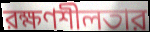
রক্ষণশীলতার